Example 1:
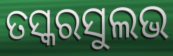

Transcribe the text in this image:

ତସ୍କରସୁଲଭ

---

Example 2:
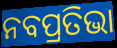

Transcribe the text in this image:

ନବପ୍ରତିଭା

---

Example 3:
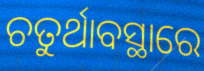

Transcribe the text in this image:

ଚତୁର୍ଥାବସ୍ଥାରେ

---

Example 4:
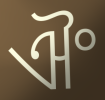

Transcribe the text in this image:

ଐଂ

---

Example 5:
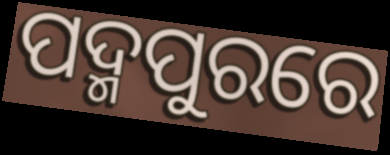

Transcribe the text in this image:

ପଦ୍ମପୁରରେ